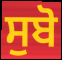
ਸੁਬੋ